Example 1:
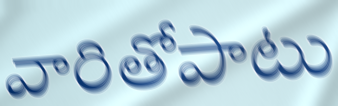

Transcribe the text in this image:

వారితోపాటు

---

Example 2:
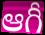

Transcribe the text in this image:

ఆగీ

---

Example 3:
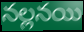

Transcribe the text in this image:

నల్లనయి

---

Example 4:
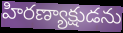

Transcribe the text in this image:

హిరణ్యాక్షుడను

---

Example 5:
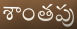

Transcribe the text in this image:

శాంతపు